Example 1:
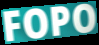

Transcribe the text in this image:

FOPO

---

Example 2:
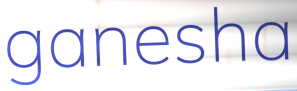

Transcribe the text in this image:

ganesha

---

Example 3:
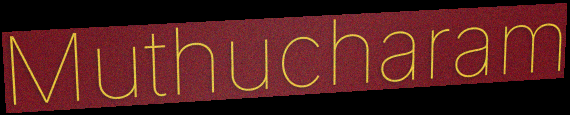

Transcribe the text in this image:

Muthucharam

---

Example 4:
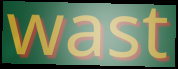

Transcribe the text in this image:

wast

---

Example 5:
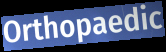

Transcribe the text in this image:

Orthopaedic